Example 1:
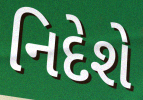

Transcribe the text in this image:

નિદેશે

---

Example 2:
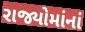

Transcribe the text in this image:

રાજ્યોમાંનાં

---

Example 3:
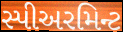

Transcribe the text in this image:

સ્પીઅરમિન્ટ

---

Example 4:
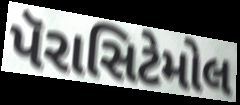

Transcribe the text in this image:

પૅરાસિટેમોલ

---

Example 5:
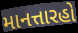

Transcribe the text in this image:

માનત્તારહો